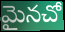
మైనచో